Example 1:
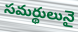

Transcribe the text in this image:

సమర్థులునై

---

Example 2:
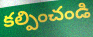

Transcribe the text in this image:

కల్పించండి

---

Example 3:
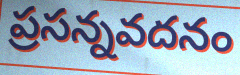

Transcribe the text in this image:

ప్రసన్నవదనం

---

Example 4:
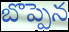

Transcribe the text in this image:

బొప్పెన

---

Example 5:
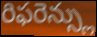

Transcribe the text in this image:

రిఫరెన్స్లు